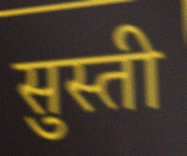
सुस्ती